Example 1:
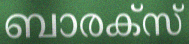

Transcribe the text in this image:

ബാരക്സ്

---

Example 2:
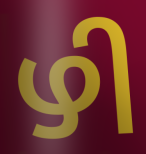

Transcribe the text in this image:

ഴി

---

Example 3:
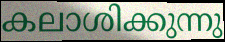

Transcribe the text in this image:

കലാശിക്കുന്നു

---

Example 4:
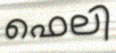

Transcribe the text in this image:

ഫെലി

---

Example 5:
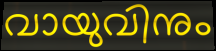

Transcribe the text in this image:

വായുവിനും